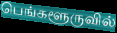
பெங்களூருவில்